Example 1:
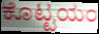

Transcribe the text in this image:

ಕೊಟ್ಟಯಂ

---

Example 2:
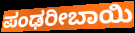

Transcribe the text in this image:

ಪಂಢರೀಬಾಯಿ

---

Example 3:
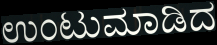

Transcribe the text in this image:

ಉಂಟುಮಾಡಿದ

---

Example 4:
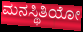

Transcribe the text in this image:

ಮನಸ್ಥಿತಿಯೋ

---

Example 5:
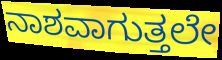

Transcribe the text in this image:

ನಾಶವಾಗುತ್ತಲೇ